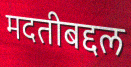
मदतीबद्दल